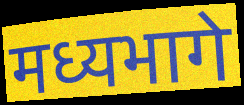
मध्यभागे